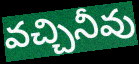
వచ్చినీవు